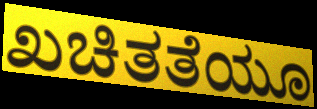
ಖಚಿತತೆಯೂ